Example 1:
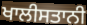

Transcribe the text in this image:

ਖਾਲੀਸਤਾਨੀ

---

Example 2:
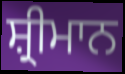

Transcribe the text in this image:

ਸ਼੍ਰੀਮਾਨ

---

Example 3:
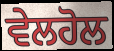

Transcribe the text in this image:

ਵੇਲਹੋਲ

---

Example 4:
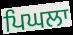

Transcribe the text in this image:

ਪਿਘਲਾ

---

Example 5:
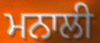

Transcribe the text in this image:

ਮਨਾਲੀ